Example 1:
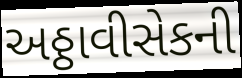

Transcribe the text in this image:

અઠ્ઠાવીસેકની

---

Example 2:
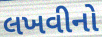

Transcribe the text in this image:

લખવીનો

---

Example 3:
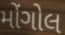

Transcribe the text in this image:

મોંગોલ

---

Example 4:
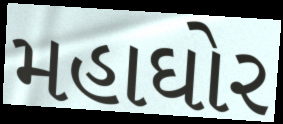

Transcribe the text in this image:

મહાઘોર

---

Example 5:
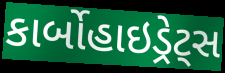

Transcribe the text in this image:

કાર્બોહાઇડ્રેટ્સ